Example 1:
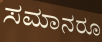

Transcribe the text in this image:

ಸಮಾನರೂ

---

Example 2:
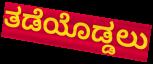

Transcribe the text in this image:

ತಡೆಯೊಡ್ಡಲು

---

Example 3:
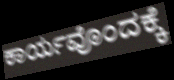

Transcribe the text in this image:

ಕಾರ್ಯವೊಂದಕ್ಕೆ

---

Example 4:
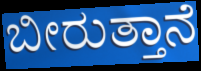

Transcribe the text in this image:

ಬೀರುತ್ತಾನೆ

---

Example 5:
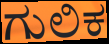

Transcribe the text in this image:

ಗುಲಿಕ